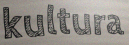
kultura